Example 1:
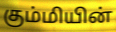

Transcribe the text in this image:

கும்மியின்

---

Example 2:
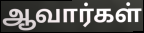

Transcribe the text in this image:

ஆவார்கள்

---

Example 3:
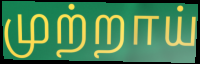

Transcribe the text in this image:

முற்றாய்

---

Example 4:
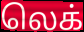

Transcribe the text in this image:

லெக்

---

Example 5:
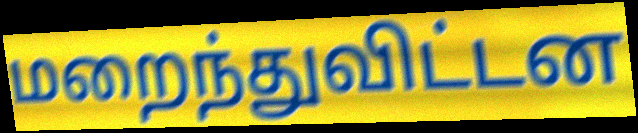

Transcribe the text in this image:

மறைந்துவிட்டன